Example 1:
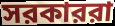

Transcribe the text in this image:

সরকাররা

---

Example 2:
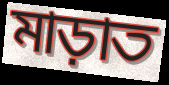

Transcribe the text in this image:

মাড়াত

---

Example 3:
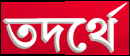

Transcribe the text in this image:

তদর্থে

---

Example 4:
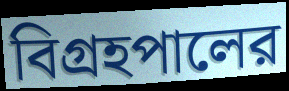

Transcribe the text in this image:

বিগ্রহপালের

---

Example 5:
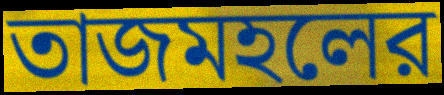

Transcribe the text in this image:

তাজমহলের